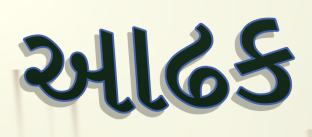
આઢક